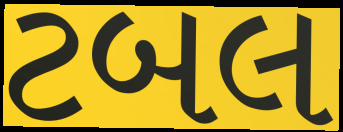
ટબલ